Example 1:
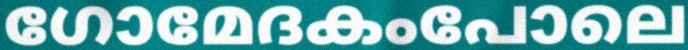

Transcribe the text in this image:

ഗോമേദകംപോലെ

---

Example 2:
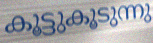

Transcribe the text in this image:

കൂട്ടുകൂടുന്നു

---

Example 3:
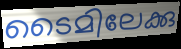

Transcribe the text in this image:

ടൈമിലേക്കു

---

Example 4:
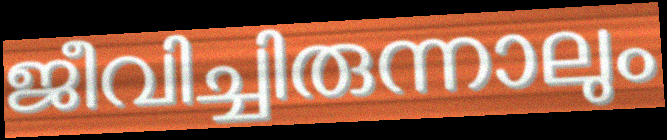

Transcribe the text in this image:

ജീവിച്ചിരുന്നാലും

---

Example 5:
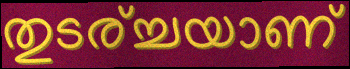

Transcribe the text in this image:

തുടര്ച്ചയാണ്